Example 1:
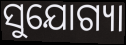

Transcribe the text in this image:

ସୁଯୋଗ୍ୟା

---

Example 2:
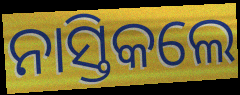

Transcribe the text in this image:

ନାସ୍ତିକଲେ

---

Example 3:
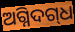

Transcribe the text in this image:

ଅଗ୍ନିଦଗ୍‌ଧ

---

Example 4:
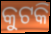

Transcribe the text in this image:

କୁଟକି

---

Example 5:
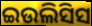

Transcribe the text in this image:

ଇଉଲିସିସ